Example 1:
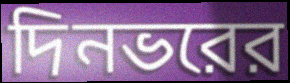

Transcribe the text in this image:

দিনভরের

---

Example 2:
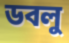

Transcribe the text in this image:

ডবলু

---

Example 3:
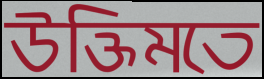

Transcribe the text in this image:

উক্তিমতে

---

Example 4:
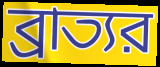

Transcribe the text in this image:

ব্রাত্যর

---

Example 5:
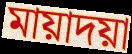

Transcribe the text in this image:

মায়াদয়া